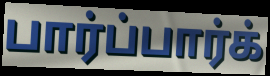
பார்ப்பார்க்